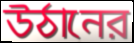
উঠানের